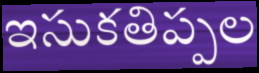
ఇసుకతిప్పల